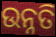
ଉନ୍ନତି